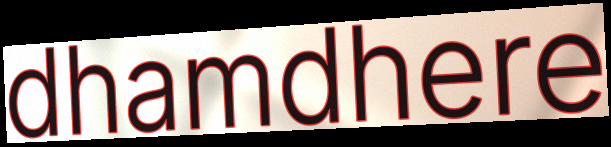
dhamdhere